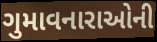
ગુમાવનારાઓની